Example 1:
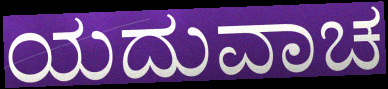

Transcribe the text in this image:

ಯದುವಾಚ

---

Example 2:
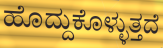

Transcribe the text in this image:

ಹೊದ್ದುಕೊಳ್ಳುತ್ತದೆ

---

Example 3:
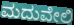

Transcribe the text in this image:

ಮದುವೇಲಿ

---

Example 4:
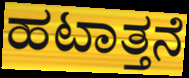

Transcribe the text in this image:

ಹಟಾತ್ತನೆ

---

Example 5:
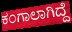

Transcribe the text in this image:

ಕಂಗಾಲಾಗಿದ್ದೆ